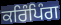
ਕਰਿੰਪਿੰਗ